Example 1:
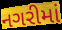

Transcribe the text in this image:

નગરીમાં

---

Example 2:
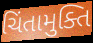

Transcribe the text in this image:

ચિંતામુક્તિ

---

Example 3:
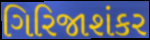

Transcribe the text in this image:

ગિરિજાશંકર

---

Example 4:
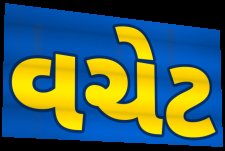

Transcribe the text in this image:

વચેટ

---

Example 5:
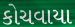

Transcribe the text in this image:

કોચવાયા